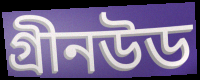
গ্রীনউড